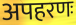
अपहरणः